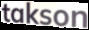
takson